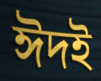
ঈদই